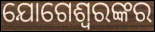
ଯୋଗେଶ୍ଵରଙ୍କର